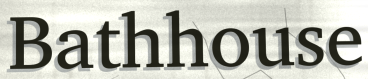
Bathhouse